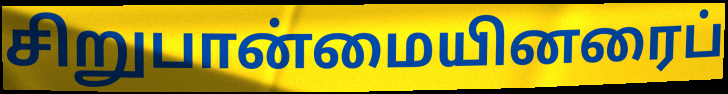
சிறுபான்மையினரைப்